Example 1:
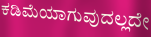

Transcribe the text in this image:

ಕಡಿಮೆಯಾಗುವುದಲ್ಲದೇ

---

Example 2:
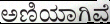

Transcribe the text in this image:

ಅಣಿಯಾಗಿವೆ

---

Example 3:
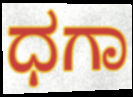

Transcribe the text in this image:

ಧಗಾ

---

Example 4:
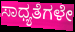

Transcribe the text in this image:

ಸಾಧ್ಯತೆಗಳೇ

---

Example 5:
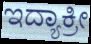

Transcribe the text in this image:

ಇದ್ಯಾಕ್ರೀ